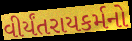
વીર્યંતરાયકર્મનો